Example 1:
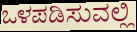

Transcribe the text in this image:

ಒಳಪಡಿಸುವಲ್ಲಿ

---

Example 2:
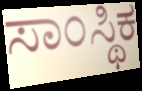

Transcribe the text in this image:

ಸಾಂಸ್ಥಿಕ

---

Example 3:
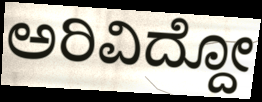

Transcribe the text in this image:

ಅರಿವಿದ್ದೋ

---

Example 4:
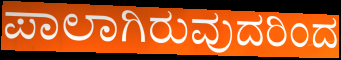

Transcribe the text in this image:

ಪಾಲಾಗಿರುವುದರಿಂದ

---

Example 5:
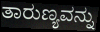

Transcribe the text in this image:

ತಾರುಣ್ಯವನ್ನು